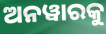
ଅନୱାରକୁ